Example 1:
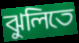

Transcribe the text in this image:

ঝুলিতে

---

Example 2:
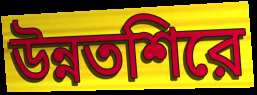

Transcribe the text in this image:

উন্নতশিরে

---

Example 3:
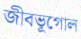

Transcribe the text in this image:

জীবভূগোল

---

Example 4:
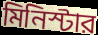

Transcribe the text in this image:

মিনিস্টার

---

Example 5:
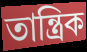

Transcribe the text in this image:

তান্ত্রিক